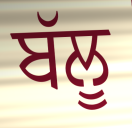
ਬੱਲੂ